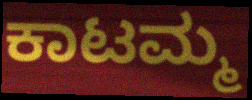
ಕಾಟಮ್ಮ